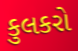
કુલકરો